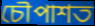
চৌপাশত